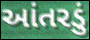
આંતરડું